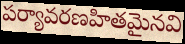
పర్యావరణహితమైనవి